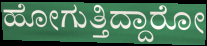
ಹೋಗುತ್ತಿದ್ದಾರೋ